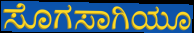
ಸೊಗಸಾಗಿಯೂ